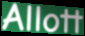
Allott